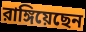
রাঙ্গিয়েছেন